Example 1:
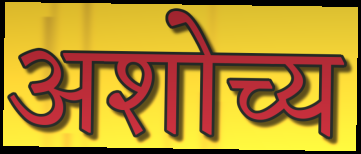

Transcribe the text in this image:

अशोच्य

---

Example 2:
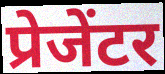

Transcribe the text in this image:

प्रेजेंटर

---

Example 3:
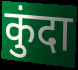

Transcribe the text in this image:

कुंदा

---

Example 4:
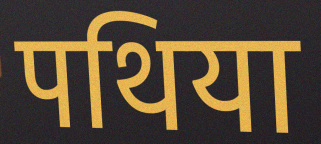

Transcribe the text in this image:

पथिया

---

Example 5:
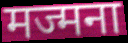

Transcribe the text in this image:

मज्मना